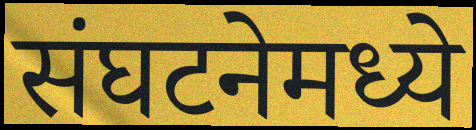
संघटनेमध्ये